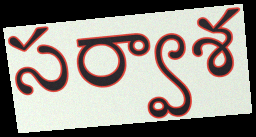
సర్వాశ